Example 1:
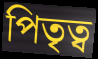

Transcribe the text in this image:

পিতৃত্ব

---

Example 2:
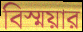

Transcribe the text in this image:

বিস্ময়ার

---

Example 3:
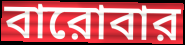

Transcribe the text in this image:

বারোবার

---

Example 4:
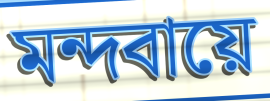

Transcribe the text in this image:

মন্দবায়ে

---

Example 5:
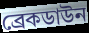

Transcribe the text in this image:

ব্রেকডাউন